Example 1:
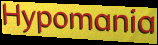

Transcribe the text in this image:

Hypomania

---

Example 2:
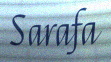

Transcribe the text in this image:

Sarafa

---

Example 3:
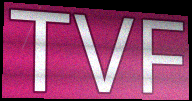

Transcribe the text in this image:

TVF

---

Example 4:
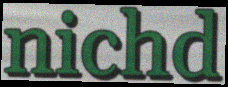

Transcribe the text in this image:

nichd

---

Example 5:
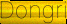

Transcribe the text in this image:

Dongri